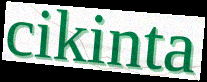
cikinta